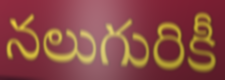
నలుగురికీ